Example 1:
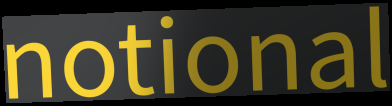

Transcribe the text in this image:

notional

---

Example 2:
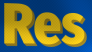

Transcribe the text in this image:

Res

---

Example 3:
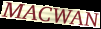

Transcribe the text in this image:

MACWAN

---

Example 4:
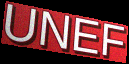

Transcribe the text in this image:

UNEF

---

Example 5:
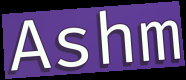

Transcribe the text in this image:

Ashm